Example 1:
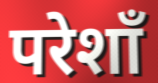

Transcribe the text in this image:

परेशाँ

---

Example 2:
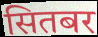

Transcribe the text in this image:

सितबर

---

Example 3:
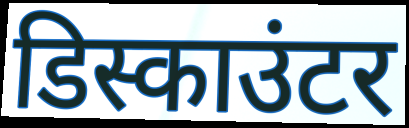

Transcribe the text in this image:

डिस्काउंटर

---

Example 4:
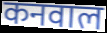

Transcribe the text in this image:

कनवाल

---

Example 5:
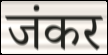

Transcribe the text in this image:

जंकर